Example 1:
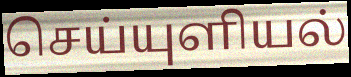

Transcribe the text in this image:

செய்யுளியல்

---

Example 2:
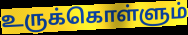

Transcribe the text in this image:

உருக்கொள்ளும்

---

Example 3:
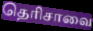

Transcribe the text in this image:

தெரிசாவை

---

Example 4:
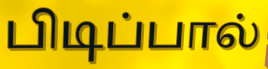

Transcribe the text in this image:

பிடிப்பால்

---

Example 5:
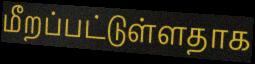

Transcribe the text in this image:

மீறப்பட்டுள்ளதாக